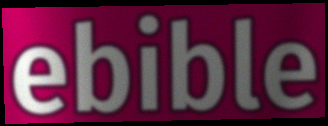
ebible